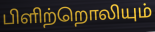
பிளிற்றொலியும்